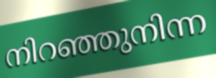
നിറഞ്ഞുനിന്ന